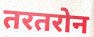
तरतरोन